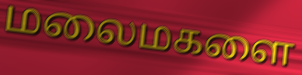
மலைமகளை